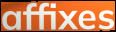
affixes